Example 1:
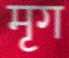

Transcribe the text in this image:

मृग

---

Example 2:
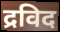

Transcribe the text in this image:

द्रविद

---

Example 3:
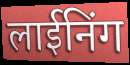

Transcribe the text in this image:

लाईनिंग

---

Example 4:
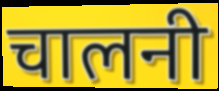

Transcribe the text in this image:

चालनी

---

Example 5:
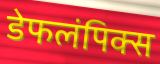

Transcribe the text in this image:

डेफलंपिक्स